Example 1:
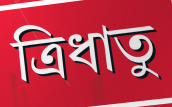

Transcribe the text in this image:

ত্রিধাতু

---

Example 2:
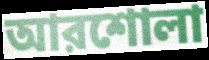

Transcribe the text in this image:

আরশোলা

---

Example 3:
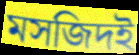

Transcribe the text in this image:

মসজিদই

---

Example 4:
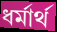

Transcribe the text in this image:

ধর্মার্থ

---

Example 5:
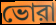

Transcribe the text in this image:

ভোরা